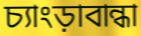
চ্যাংড়াবান্ধা